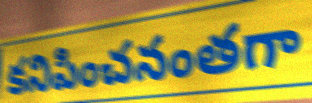
కనిపించనంతగా